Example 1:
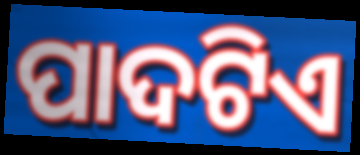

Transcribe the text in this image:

ପାଦଟିଏ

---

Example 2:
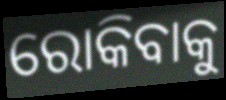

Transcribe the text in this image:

ରୋକିବାକୁ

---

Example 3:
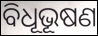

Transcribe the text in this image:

ବିଧୂଭୂଷଣ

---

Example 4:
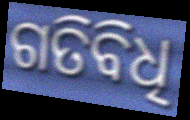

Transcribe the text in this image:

ଗତିବିଧି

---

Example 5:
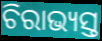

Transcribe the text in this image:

ଚିରାଭ୍ୟସ୍ତ